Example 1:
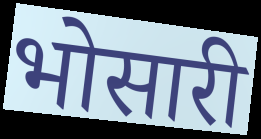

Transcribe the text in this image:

भोसारी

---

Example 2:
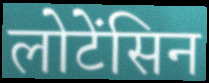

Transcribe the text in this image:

लोटेंसिन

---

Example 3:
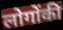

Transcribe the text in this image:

लोगोंकी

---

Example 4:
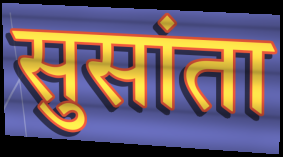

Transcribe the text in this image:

सुसांता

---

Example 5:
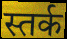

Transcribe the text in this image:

स्तर्क